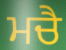
ਮਚੈ